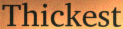
Thickest